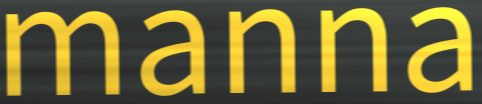
manna